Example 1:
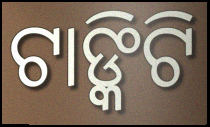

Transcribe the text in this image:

ଟାଙ୍କିଟି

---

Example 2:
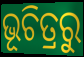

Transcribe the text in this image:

ଭୂଚିତ୍ରରୁ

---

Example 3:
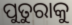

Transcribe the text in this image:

ପୁତୁରାକୁ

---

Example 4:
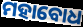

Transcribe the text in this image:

ମହାବୋଧ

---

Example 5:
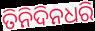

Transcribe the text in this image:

ତିନିଦିନଧରି